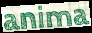
anima